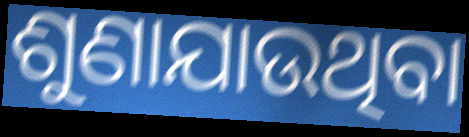
ଶୁଣାଯାଉଥିବା